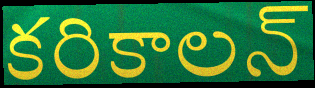
కరికాలన్